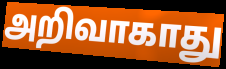
அறிவாகாது